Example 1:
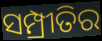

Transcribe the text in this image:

ସମ୍ପ୍ରୀତିର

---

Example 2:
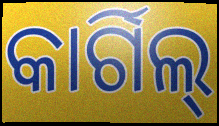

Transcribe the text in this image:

କାର୍ଗିଲ୍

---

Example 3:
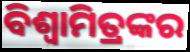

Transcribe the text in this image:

ବିଶ୍ୱାମିତ୍ରଙ୍କର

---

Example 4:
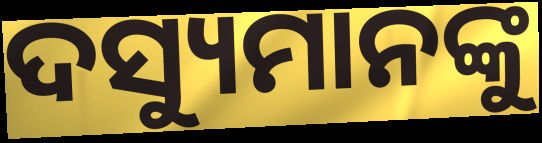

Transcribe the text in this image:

ଦସ୍ୟୁମାନଙ୍କୁ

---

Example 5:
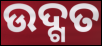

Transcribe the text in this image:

ଉଦ୍ଗତ